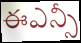
ఈఎన్సీ